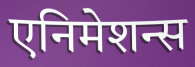
एनिमेशन्स